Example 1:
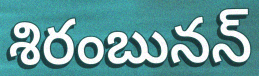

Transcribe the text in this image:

శిరంబునన్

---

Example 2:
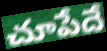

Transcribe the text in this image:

చూపేదే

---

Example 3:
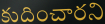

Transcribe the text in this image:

కుదించారని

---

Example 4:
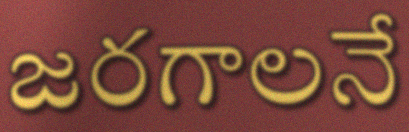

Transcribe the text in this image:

జరగాలనే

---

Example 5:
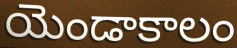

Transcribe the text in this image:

యెండాకాలం